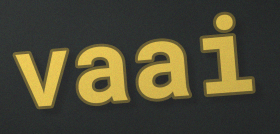
vaai